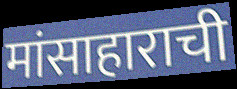
मांसाहाराची